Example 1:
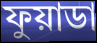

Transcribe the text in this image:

ফুয়াডা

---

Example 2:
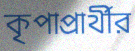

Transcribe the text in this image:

কৃপাপ্রার্থীর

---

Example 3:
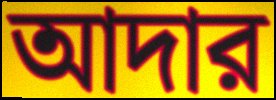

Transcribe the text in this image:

আদার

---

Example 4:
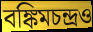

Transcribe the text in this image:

বঙ্কিমচন্দ্রও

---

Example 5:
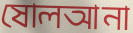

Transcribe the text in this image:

ষোলআনা